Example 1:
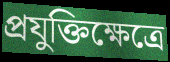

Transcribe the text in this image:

প্রযুক্তিক্ষেত্রে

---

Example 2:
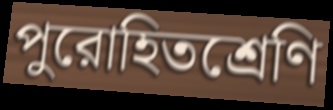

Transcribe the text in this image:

পুরোহিতশ্রেণি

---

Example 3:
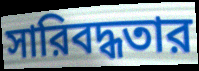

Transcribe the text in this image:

সারিবদ্ধতার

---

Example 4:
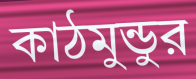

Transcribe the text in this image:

কাঠমুন্ডুর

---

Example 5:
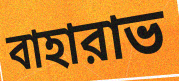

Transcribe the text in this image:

বাহারাভ